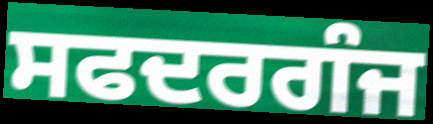
ਸਫਦਰਗੰਜ